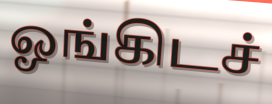
ஓங்கிடச்